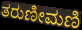
ತರುಣೀಮಣಿ